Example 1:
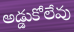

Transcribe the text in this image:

అడ్డుకోలేవు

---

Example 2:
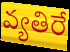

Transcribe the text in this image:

వ్యతిరే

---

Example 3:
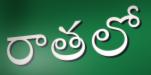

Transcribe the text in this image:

రాతలో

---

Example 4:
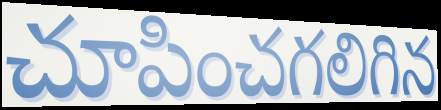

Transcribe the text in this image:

చూపించగలిగిన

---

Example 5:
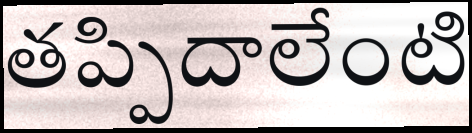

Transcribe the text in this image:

తప్పిదాలేంటి